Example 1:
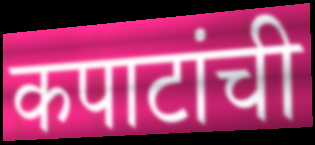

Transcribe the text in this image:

कपाटांची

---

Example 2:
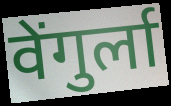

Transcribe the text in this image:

वेंगुर्ला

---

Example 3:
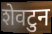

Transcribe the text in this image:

शेवटुन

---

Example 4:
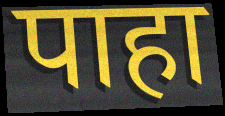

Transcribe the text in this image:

पाहा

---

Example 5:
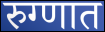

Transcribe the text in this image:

रुग्णात